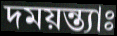
দময়ন্ত্যাঃ